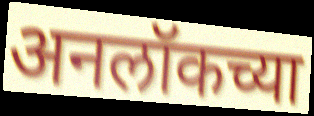
अनलॉकच्या